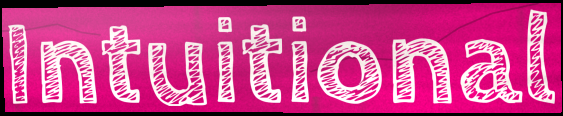
Intuitional